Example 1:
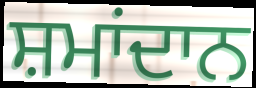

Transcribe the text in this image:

ਸ਼ਮਾਂਦਾਨ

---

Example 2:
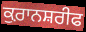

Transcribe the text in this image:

ਕ਼ੁਰਾਨਸ਼ਰੀਫ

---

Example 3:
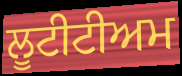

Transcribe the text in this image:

ਲੂਟੀਟੀਅਮ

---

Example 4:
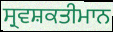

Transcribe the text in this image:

ਸ੍ਰਵਸ਼ਕਤੀਮਾਨ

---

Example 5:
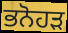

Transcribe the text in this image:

ਭਨੋਹੜ